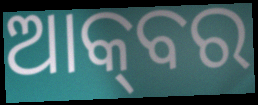
ଆକ୍‌ବର